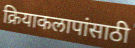
क्रियाकलापांसाठी